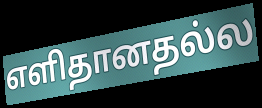
எளிதானதல்ல